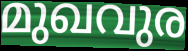
മുഖവുര